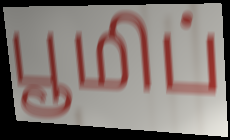
பூமிப்